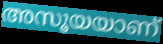
അസൂയയാണ്